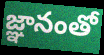
జ్ఞానంతో